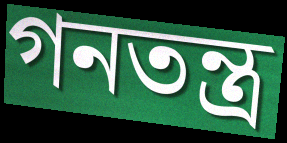
গনতন্ত্র